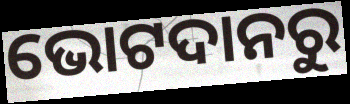
ଭୋଟଦାନରୁ